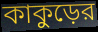
কাকুড়ের